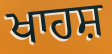
ਖਾਹਸ਼